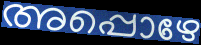
അപ്പൊഴേ